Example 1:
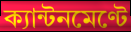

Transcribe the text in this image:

ক্যান্টনমেণ্টে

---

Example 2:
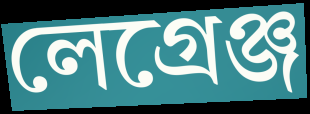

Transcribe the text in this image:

লেগ্রেঞ্জ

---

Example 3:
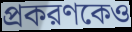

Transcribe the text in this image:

প্রকরণকেও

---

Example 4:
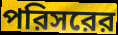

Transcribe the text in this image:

পরিসরের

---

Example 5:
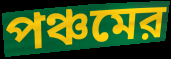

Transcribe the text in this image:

পঞ্চমের